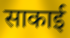
साकाई